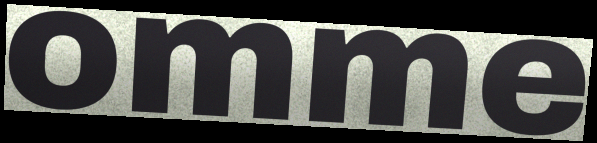
omme